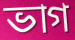
ভাগ